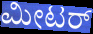
ಮೀಟರ್